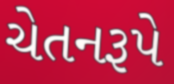
ચેતનરૂપે